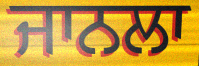
ਜਾਨਲਾ